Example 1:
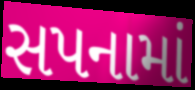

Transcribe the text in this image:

સપનામાં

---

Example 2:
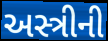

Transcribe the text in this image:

અસ્ત્રીની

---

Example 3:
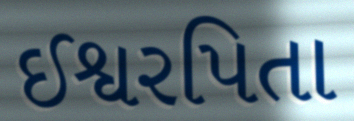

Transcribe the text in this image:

ઈશ્વરપિતા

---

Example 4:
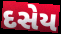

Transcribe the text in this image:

દસેય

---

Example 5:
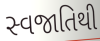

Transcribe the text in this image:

સ્વજાતિથી